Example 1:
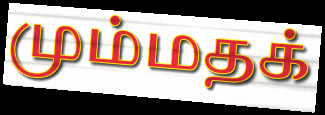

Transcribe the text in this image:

மும்மதக்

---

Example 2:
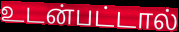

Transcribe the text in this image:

உடன்பட்டால்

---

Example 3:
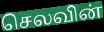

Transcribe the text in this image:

செலவின்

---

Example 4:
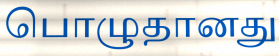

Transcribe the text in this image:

பொழுதானது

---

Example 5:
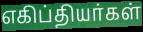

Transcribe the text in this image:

எகிப்தியர்கள்